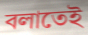
বলাতেই